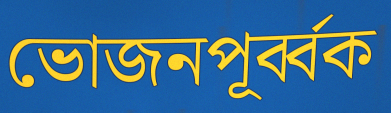
ভোজনপূর্ব্বক